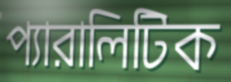
প্যারালিটিক